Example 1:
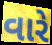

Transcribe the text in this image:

વારે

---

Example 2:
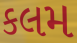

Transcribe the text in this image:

કલમ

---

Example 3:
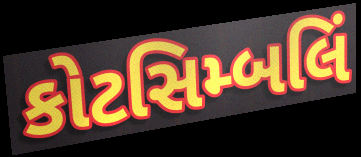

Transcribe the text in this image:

કોટસિમ્બલિં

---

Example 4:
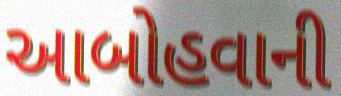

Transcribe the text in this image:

આબોહવાની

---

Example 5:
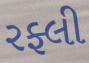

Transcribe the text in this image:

રફ્લી